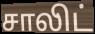
சாலிட்